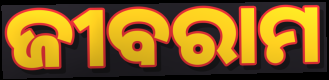
ଜୀବରାମ